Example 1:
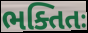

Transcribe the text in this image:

ભક્તિતઃ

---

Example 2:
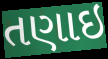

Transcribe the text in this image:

તણાઇ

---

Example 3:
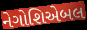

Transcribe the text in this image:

નેગોશિએબલ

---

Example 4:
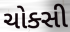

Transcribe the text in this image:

ચોક્સી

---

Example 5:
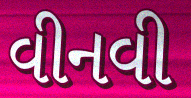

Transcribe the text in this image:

વીનવી